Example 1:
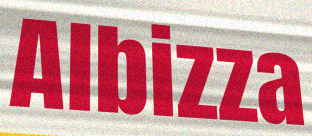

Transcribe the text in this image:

Albizza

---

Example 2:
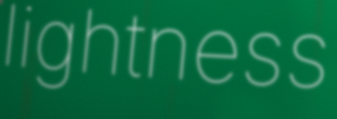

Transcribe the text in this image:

lightness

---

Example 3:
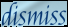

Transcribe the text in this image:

dismiss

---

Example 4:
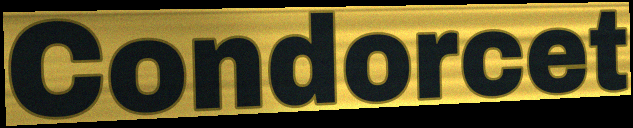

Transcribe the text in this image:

Condorcet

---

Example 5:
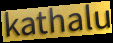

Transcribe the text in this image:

kathalu